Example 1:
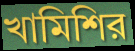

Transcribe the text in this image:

খামিশির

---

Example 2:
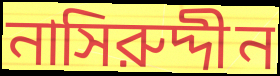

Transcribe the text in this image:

নাসিরুদ্দীন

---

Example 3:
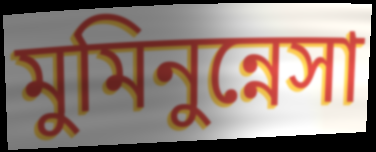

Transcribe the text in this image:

মুমিনুন্নেসা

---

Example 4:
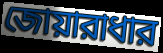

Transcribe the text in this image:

জোয়ারাধার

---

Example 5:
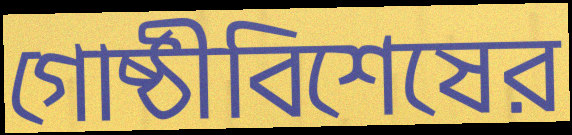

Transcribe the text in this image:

গোষ্ঠীবিশেষের